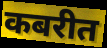
कबरीत